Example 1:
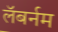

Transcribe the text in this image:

लॅबर्नम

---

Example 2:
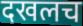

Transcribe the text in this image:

दखलच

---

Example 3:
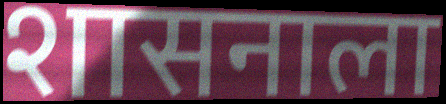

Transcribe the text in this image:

शासनाला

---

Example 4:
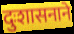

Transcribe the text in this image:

दुःशासनाने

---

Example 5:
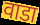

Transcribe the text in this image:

वाडा